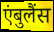
एंबुलैंस